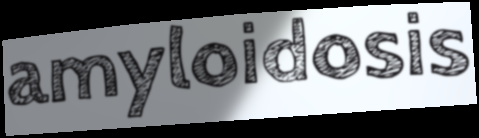
amyloidosis